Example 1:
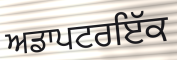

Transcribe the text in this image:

ਅਡਾਪਟਰਇੱਕ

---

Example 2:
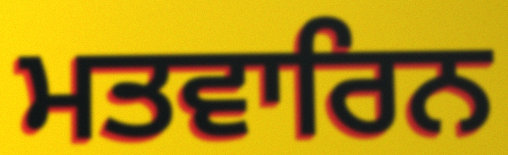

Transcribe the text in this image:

ਮਤਵਾਰਿਨ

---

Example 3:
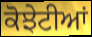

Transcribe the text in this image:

ਕੋਝੇਟੀਆਂ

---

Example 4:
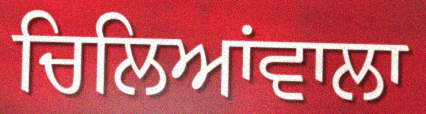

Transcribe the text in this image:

ਚਿਲਿਆਂਵਾਲਾ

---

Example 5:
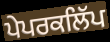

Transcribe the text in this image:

ਪੇਪਰਕਲਿੱਪ